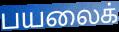
பயலைக்